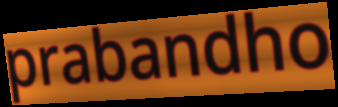
prabandho